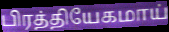
பிரத்தியேகமாய்